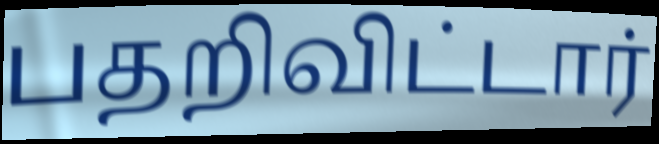
பதறிவிட்டார்